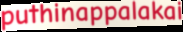
puthinappalakai